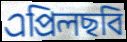
এপ্রিলছবি